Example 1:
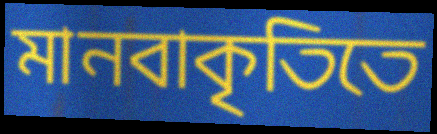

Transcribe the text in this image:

মানবাকৃতিতে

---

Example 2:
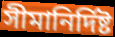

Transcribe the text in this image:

সীমানির্দিষ্ট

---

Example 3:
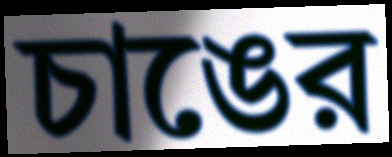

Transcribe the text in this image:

চাঙের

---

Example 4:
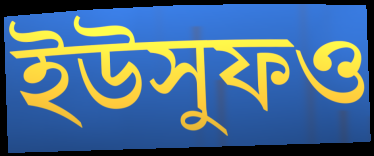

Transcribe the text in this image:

ইউসুফও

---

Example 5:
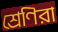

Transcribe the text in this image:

শ্রেণিরা